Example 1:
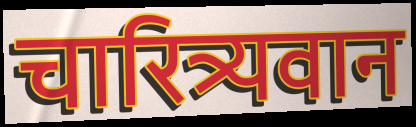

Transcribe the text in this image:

चारित्र्यवान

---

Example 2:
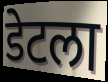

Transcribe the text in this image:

डेटला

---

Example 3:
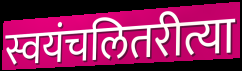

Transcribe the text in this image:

स्वयंचलितरीत्या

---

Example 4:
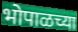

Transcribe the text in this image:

भोपाळच्या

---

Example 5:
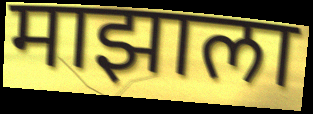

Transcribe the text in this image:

माझाला